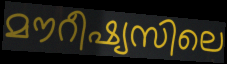
മൗറീഷ്യസിലെ